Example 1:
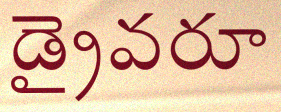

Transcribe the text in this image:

డ్రైవరూ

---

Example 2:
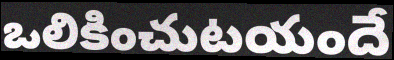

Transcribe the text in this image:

ఒలికించుటయందే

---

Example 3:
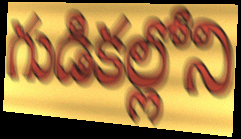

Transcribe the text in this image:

గుడికల్లోని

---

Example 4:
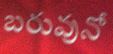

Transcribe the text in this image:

బరువునో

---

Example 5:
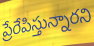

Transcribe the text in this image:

ప్రేరేపిస్తున్నారని